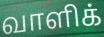
வாளிக்